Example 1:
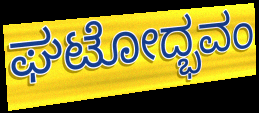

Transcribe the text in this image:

ಘಟೋದ್ಭವಂ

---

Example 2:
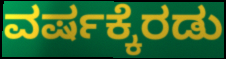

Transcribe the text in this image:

ವರ್ಷಕ್ಕೆರಡು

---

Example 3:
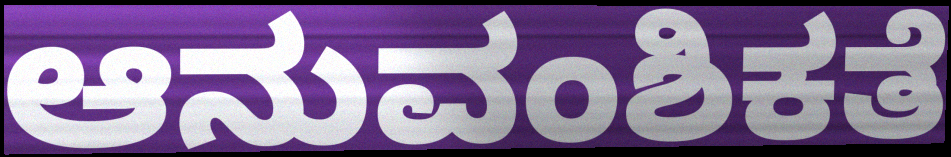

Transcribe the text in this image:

ಆನುವಂಶಿಕತೆ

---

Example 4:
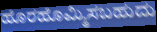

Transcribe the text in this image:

ಹೊರಹೊಮ್ಮಿಸಬಹುದು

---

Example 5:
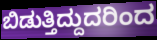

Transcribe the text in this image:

ಬಿಡುತ್ತಿದ್ದುದರಿಂದ